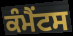
ਕੰਮੈਂਟਸ